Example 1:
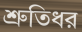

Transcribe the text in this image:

শ্রুতিধর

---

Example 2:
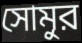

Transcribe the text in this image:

সোমুর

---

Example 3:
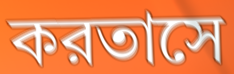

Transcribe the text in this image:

করতাসে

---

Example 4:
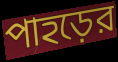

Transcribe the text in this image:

পাহড়ের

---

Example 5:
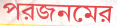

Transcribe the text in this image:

পরজনমের